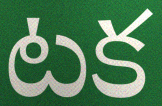
టక